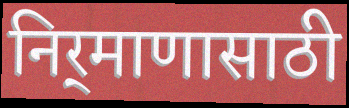
निर्माणासाठी